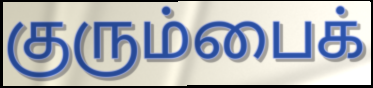
குரும்பைக்